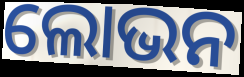
ଲୋଭନ